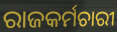
ରାଜକର୍ମଚାରୀ